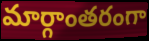
మార్గాంతరంగా